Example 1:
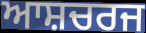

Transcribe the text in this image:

ਆਸ਼ਚਰਜ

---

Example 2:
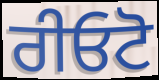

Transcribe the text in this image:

ਰੀਓਟੋ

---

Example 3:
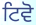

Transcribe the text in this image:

ਟਿਵੋ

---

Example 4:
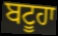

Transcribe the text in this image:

ਬਟੂਹਾ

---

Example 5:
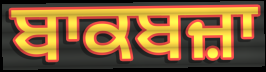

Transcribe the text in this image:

ਬਾਕਬਜ਼ਾ